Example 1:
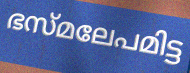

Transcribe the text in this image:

ഭസ്മലേപമിട്ട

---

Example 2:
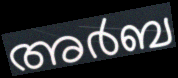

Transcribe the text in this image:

അർബ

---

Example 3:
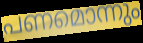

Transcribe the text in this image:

പണമൊന്നും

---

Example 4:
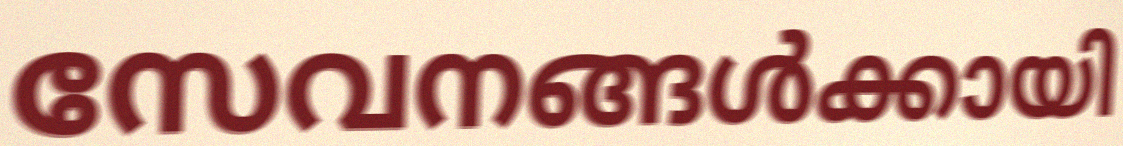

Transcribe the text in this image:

സേവനങ്ങൾക്കായി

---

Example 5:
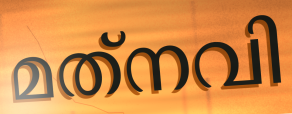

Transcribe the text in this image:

മത്‌നവി